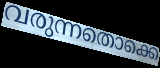
വരുന്നതൊക്കെ